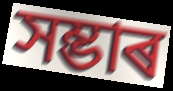
সম্ভাৰ